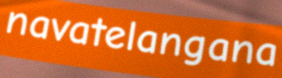
navatelangana